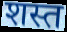
शस्त